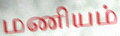
மணியம்